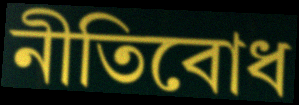
নীতিবোধ